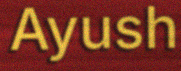
Ayush